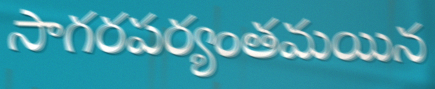
సాగరపర్యంతమయిన